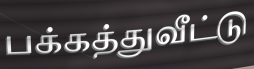
பக்கத்துவீட்டு